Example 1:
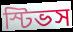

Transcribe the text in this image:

স্টিভস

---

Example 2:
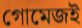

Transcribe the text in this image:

গোমেজই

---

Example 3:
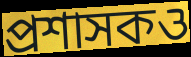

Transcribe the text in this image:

প্রশাসকও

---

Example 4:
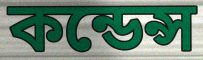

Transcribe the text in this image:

কন্ডেন্স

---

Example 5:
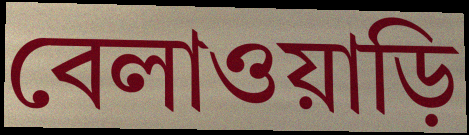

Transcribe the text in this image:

বেলাওয়াড়ি